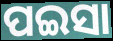
ପଇସା